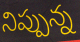
నిప్పున్న